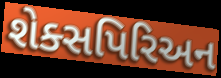
શેક્સપિરિઅન